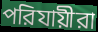
পরিযায়ীরা